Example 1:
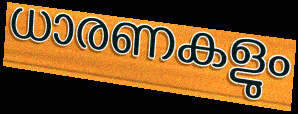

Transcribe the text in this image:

ധാരണകളും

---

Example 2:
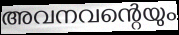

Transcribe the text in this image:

അവനവന്റെയും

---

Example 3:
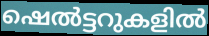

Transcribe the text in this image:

ഷെൽട്ടറുകളിൽ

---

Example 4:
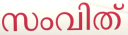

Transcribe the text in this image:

സംവിത്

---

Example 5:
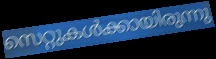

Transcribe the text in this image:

സെറ്റുകൾക്കായിരുന്നു